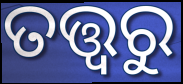
ତତ୍ତ୍ୱରୁ